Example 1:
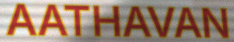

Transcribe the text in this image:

AATHAVAN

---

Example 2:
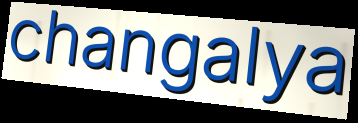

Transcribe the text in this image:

changalya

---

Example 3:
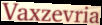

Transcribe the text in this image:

Vaxzevria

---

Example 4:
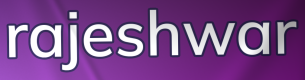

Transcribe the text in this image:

rajeshwar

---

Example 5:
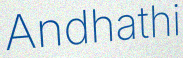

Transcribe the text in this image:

Andhathi